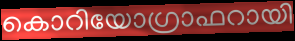
കൊറിയോഗ്രാഫറായി